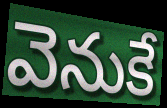
వెనుకే